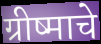
ग्रीष्माचे